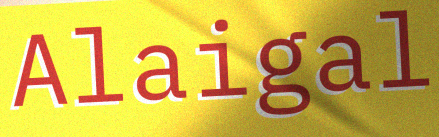
Alaigal